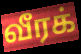
வீரக்